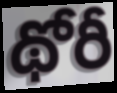
థోరీ